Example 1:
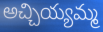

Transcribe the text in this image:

అచ్చియ్యమ్మ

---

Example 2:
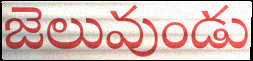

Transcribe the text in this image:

జెలువుండు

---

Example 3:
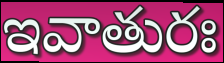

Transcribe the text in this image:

ఇవాతురః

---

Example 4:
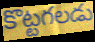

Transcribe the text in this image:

కొట్టగలడు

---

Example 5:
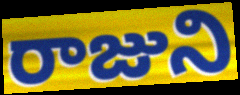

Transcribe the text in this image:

రాజుని